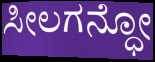
ಸೀಲಗನ್ಧೋ